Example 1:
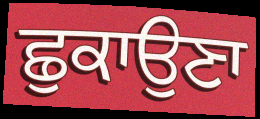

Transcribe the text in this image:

ਛੁਕਾਉਣਾ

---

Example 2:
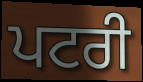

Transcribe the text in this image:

ਪਟਰੀ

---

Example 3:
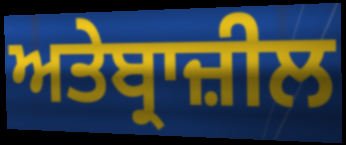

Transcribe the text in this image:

ਅਤੇਬ੍ਰਾਜ਼ੀਲ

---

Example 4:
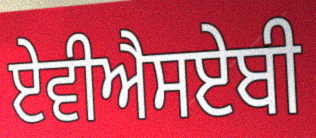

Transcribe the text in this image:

ਏਵੀਐਸਏਬੀ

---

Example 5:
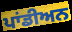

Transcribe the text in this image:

ਪਾਂਡੀਅਨ